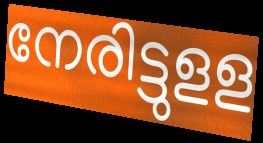
നേരിട്ടുളള